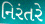
નિરંતરે